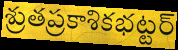
శ్రుతప్రకాశికభట్టర్